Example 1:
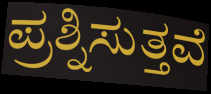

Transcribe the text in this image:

ಪ್ರಶ್ನಿಸುತ್ತವೆ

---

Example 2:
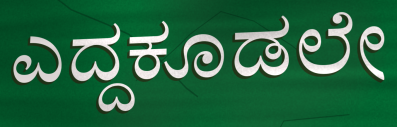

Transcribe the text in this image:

ಎದ್ದಕೂಡಲೇ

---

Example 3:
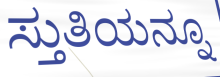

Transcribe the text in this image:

ಸ್ತುತಿಯನ್ನೂ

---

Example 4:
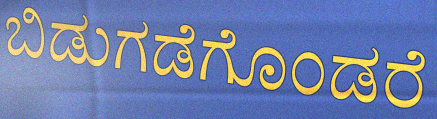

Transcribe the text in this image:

ಬಿಡುಗಡೆಗೊಂಡರೆ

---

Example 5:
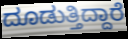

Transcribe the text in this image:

ದೂಡುತ್ತಿದ್ದಾರೆ